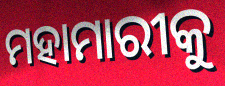
ମହାମାରୀକୁ